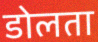
डोलता